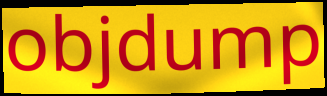
objdump